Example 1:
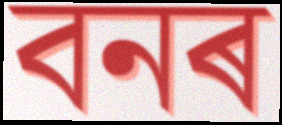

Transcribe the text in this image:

বনৰ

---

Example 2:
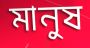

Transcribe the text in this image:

মানুষ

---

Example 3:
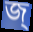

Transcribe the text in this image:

জ্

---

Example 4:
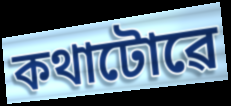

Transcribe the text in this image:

কথাটোৱে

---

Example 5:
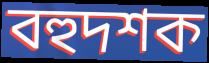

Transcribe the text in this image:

বহুদশক